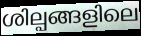
ശില്പങ്ങളിലെ